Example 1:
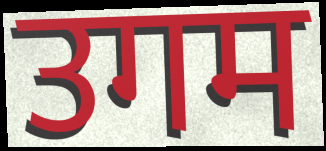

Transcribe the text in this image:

उगम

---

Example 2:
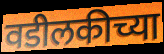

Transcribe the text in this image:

वडीलकीच्या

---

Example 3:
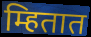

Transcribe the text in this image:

म्हितात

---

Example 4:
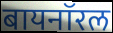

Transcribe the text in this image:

बायनॉरल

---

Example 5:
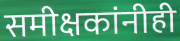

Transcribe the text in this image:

समीक्षकांनीही